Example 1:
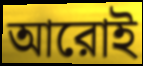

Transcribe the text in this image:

আরোই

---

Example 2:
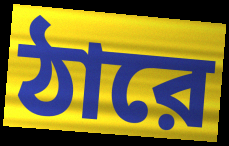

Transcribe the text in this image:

ঠারে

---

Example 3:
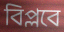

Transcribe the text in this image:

বিপ্লবে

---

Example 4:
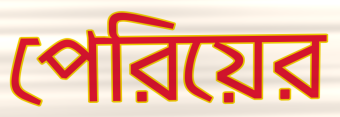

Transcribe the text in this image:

পেরিয়ের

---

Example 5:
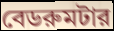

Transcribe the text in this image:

বেডরুমটার